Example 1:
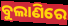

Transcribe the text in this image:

ବୁଲାଣିରେ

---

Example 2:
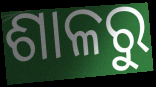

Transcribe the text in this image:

ଶାଳରୁ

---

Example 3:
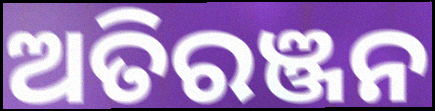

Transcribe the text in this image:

ଅତିରଞ୍ଜନ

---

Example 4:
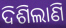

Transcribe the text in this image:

ଦିଶିଲାଣି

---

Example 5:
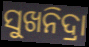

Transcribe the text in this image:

ସୁଖନିଦ୍ରା